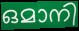
ഒമാനി